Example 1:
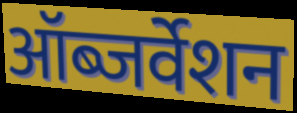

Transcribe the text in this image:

ऑब्ज़र्वेशन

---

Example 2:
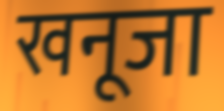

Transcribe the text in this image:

खनूजा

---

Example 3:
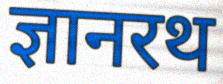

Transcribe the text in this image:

ज्ञानरथ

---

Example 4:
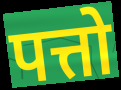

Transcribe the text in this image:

पत्तो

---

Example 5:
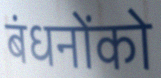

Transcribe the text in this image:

बंधनोंको